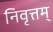
निवृत्तम्